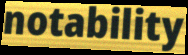
notability